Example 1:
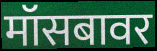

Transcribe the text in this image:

मॉसबावर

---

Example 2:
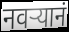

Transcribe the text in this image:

नवऱ्यानं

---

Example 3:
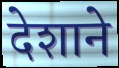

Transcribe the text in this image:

देशाने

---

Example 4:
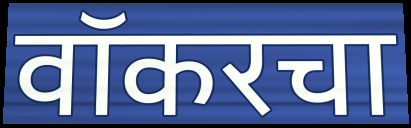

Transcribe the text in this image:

वॉकरचा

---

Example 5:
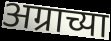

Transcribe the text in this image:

अग्राच्या